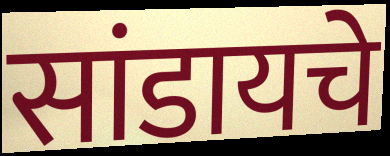
सांडायचे